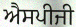
ਐਸਪੀਜੀ